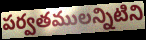
పర్వతములన్నిటిని